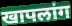
खापलांग